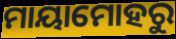
ମାୟାମୋହରୁ